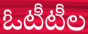
ఓటీటీల